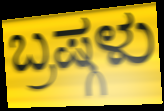
ಬ್ರಷ್ಗಳು